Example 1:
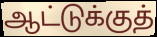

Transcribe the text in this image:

ஆட்டுக்குத்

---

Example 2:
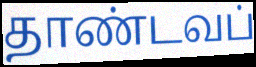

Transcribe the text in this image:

தாண்டவப்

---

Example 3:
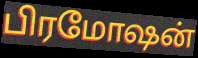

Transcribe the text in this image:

பிரமோஷன்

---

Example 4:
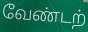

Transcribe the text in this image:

வேண்டற்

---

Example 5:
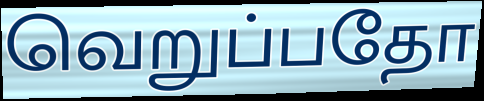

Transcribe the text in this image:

வெறுப்பதோ